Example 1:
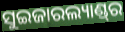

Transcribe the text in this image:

ସୁଇଜାରଲ୍ୟାଣ୍ଡ୍‌ର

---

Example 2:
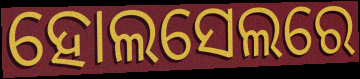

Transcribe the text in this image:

ହୋଲସେଲରେ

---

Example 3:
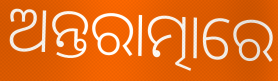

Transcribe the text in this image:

ଅନ୍ତରାତ୍ମାରେ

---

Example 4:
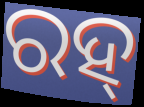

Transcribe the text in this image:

ରହ୍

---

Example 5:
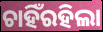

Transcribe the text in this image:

ଚାହିଁରହିଲା